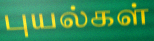
புயல்கள்